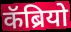
कॅब्रियो